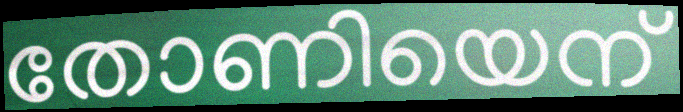
തോണിയെന്